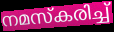
നമസ്‌കരിച്ച്